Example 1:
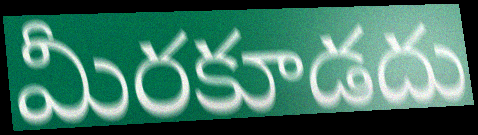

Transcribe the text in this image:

మీరకూడదు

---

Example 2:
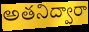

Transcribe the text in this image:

అతనిద్వారా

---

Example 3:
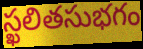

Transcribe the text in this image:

స్ఖలితసుభగం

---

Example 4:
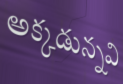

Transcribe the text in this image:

అక్కడున్నవి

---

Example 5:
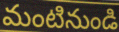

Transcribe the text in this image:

మంటినుండి